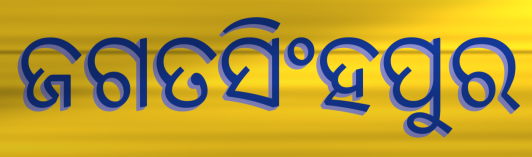
ଜଗତସିଂହପୁର